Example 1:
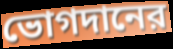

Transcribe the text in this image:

ভোগদানের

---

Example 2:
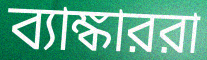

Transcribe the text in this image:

ব্যাঙ্কাররা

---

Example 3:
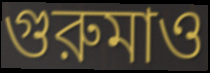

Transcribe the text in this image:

গুরুমাও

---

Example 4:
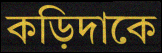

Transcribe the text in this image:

কড়িদাকে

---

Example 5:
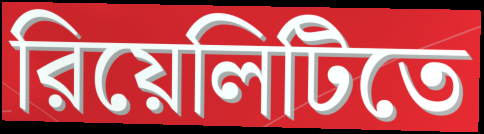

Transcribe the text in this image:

রিয়েলিটিতে